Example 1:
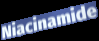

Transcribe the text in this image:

Niacinamide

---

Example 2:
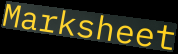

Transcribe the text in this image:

Marksheet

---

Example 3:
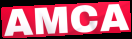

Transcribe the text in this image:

AMCA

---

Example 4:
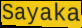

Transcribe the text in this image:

Sayaka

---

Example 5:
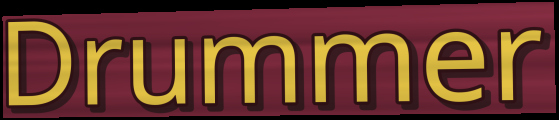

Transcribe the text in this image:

Drummer